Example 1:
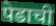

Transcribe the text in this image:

पेडाची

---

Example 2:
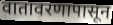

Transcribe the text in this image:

वातावरणापासून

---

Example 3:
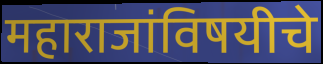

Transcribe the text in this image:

महाराजांविषयीचे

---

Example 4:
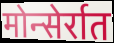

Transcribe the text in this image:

मोन्सेर्रात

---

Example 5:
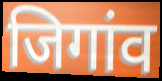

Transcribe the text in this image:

जिगांव